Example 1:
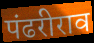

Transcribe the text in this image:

पंढरीराव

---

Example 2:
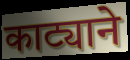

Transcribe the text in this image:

काट्याने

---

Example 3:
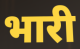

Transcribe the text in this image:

भारी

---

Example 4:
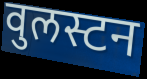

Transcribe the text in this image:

वुलस्टन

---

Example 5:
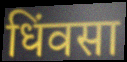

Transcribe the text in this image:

धिंवसा